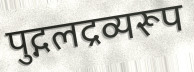
पुद्गलद्रव्यरूप